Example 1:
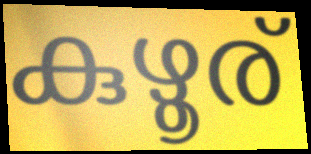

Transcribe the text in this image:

കുഴൂര്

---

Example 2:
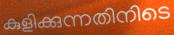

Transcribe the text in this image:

കുളിക്കുന്നതിനിടെ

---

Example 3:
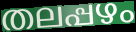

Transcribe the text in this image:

തലപ്പഴം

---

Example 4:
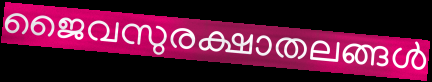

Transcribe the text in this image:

ജൈവസുരക്ഷാതലങ്ങൾ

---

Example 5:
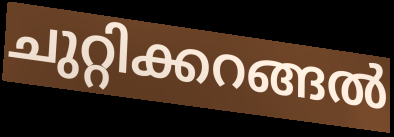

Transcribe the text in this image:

ചുറ്റിക്കറങ്ങൽ